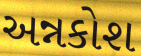
અન્નકોશ